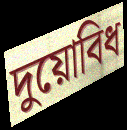
দুয়োবিধ